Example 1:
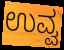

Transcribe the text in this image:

ಉವ್ವ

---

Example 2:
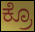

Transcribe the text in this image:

ಕ್ರೊ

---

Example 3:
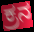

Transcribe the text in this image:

ಕ್ರನ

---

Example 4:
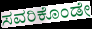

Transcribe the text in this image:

ಸವರಿಕೊಂಡೇ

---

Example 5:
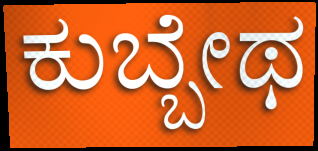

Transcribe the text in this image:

ಕುಬ್ಬೇಥ